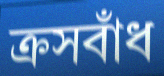
ক্রসবাঁধ